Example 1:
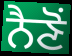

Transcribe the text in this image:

ਨੈਣੋਂ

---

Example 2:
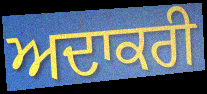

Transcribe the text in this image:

ਅਦਾਕਰੀ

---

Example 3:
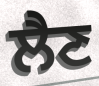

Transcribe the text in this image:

ਲੈਣ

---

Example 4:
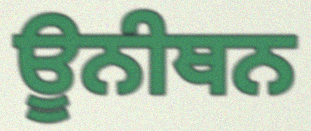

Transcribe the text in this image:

ਊਨੀਥਨ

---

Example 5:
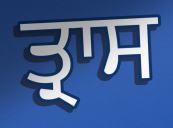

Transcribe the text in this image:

ਤ੍ਰਾਸ